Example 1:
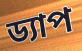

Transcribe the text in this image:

ড্যাপ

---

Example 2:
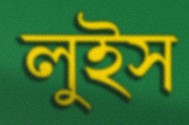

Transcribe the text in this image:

লুইস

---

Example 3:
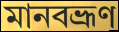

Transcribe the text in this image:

মানবভ্রূণ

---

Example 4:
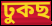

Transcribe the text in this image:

ঢুকছ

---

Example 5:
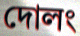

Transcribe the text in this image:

দোলং